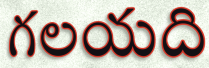
గలయది